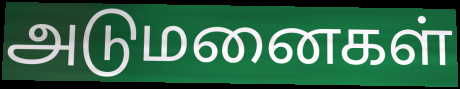
அடுமனைகள்